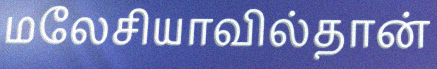
மலேசியாவில்தான்